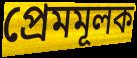
প্রেমমূলক